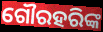
ଗୌରହରିଙ୍କ